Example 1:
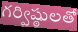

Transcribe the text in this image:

గర్విష్ఠులతో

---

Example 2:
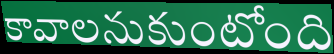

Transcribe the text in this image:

కావాలనుకుంటోంది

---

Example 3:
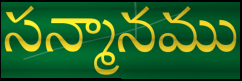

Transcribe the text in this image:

సన్మానము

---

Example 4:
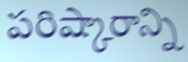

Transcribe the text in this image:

పరిష్కారాన్ని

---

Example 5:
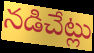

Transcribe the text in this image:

నడిచేట్లు